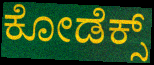
ಕೋಡೆಕ್ಸ್